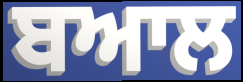
ਬਆਲ